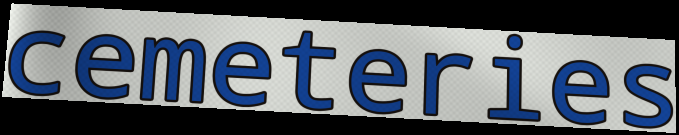
cemeteries